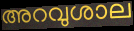
അറവുശാല